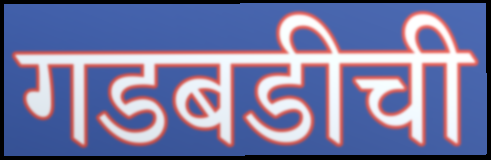
गडबडीची